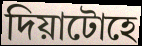
দিয়াটোহে